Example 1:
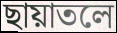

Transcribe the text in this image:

ছায়াতলে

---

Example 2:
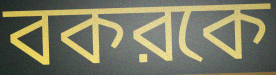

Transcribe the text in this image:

বকরকে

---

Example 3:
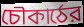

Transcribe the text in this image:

চৌকাঠের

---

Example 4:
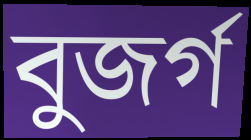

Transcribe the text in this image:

বুজর্গ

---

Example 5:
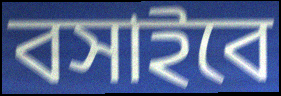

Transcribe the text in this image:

বসাইবে